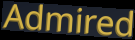
Admired